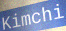
Kimchi